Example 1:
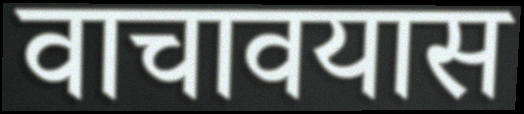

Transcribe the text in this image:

वाचावयास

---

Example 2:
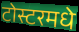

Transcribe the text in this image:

टोस्टरमधे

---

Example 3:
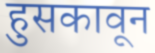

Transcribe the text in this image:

हुसकावून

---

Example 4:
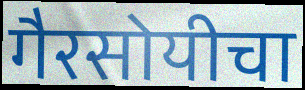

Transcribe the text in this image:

गैरसोयीचा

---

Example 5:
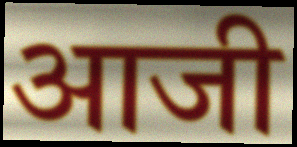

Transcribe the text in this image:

आजी